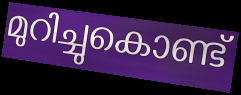
മുറിച്ചുകൊണ്ട്